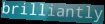
brilliantly